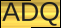
ADQ